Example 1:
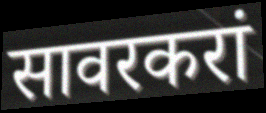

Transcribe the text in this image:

सावरकरां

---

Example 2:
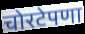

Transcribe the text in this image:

चोरटेपणा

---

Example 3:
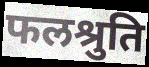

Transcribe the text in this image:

फलश्रुति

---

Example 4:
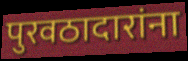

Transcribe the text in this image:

पुरवठादारांना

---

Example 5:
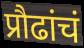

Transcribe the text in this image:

प्रौढांचं